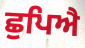
ਛੁਪਿਐ